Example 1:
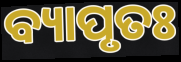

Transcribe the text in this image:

ବ୍ୟାପୃତଃ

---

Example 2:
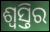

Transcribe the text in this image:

ଶ୍ୱସ୍ତିର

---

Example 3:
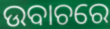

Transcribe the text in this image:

ଉବାଚରେ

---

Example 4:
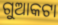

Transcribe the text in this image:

ଗୁଆକଟା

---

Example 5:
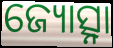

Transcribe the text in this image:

ଜ୍ୟୋତ୍ସ୍ନା